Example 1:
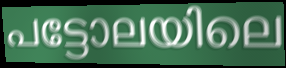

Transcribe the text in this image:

പട്ടോലയിലെ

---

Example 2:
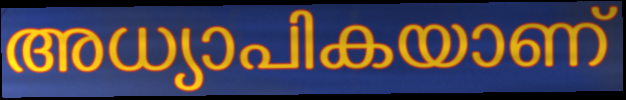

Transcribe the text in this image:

അധ്യാപികയാണ്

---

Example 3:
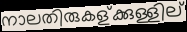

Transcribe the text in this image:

നാലതിരുകള്ക്കുള്ളില്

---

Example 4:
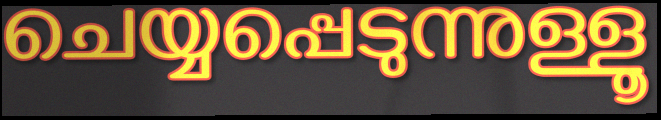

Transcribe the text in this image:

ചെയ്യപ്പെടുന്നുള്ളൂ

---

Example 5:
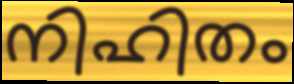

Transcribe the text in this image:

നിഹിതം